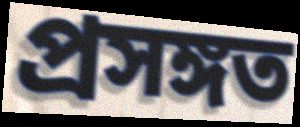
প্ৰসঙ্গত